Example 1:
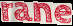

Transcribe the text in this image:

rane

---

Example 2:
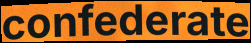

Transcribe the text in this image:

confederate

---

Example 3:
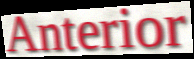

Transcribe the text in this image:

Anterior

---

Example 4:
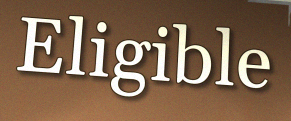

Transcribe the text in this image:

Eligible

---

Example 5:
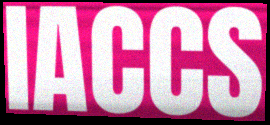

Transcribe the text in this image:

IACCS